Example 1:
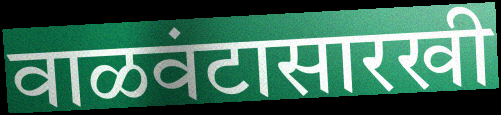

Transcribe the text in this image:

वाळवंटासारखी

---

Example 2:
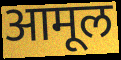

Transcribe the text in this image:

आमूल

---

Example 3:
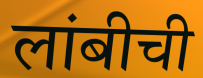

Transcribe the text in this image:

लांबीची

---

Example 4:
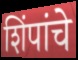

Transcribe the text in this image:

शिंपांचे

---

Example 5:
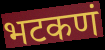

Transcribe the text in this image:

भटकणं